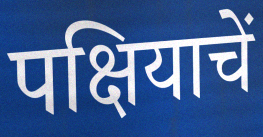
पक्षियाचें